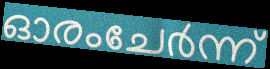
ഓരംചേർന്ന്